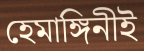
হেমাঙ্গিনীই